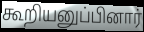
கூறியனுப்பினார்